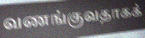
வணங்குவதாகக்